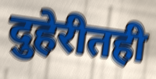
दुहेरीतही